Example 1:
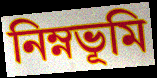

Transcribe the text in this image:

নিম্নভূমি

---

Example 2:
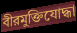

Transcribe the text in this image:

বীরমুক্তিযোদ্ধা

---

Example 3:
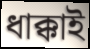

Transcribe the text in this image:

ধাক্কাই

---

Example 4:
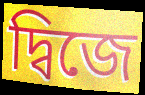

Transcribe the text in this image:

দ্বিজে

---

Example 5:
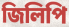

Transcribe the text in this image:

জিলিপি